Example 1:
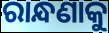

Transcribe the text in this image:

ରାନ୍ଧଣାକୁ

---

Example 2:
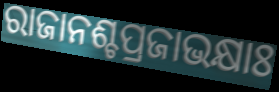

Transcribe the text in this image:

ରାଜାନଶ୍ଚପ୍ରଜାଭକ୍ଷାଃ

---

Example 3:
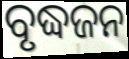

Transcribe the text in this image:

ବୃଦ୍ଧଜନ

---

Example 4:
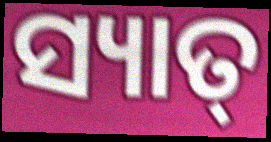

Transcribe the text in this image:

ସ୍ୟାତ୍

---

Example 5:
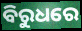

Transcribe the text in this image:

ବିରୁଧରେ